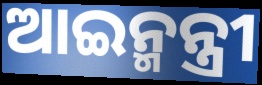
ଆଇନ୍ମନ୍ତ୍ରୀ